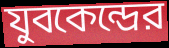
যুবকেন্দ্রের